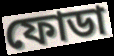
ফোডা